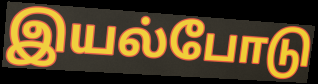
இயல்போடு